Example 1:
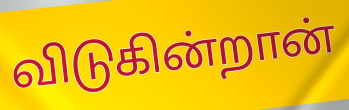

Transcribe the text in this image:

விடுகின்றான்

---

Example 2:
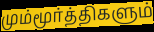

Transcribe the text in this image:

மும்மூர்த்திகளும்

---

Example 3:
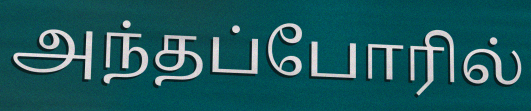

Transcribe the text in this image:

அந்தப்போரில்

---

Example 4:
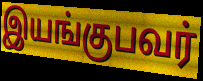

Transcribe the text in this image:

இயங்குபவர்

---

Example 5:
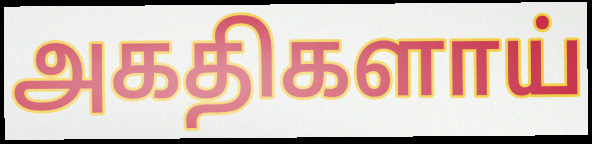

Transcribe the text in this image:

அகதிகளாய்